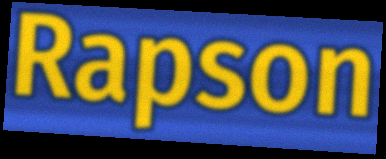
Rapson